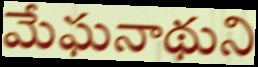
మేఘనాథుని